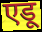
एडू